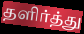
தளிர்த்து